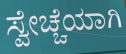
ಸ್ವೇಚ್ಚೆಯಾಗಿ